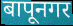
बापूनगर